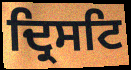
ਦ੍ਰਿਸਟਿ